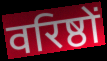
वरिष्ठों